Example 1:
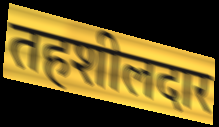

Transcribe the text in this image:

तहशीलदार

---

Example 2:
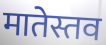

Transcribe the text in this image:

मातेस्तव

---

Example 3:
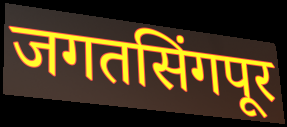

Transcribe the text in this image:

जगतसिंगपूर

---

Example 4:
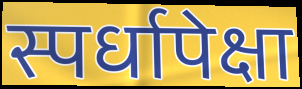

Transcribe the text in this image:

स्पर्धापेक्षा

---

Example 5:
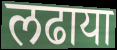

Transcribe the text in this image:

लढाया